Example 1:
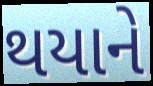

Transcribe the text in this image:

થયાને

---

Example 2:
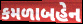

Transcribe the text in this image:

કમળાબહેન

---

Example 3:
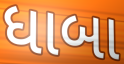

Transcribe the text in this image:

ધાબા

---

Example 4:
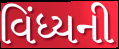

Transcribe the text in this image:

વિંધ્યની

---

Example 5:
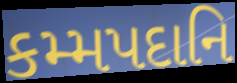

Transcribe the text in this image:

કમ્મપદાનિ